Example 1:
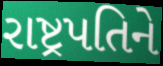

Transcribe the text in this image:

રાષ્ટ્રપતિને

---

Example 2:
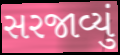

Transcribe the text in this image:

સરજાવ્યું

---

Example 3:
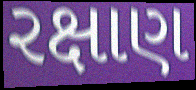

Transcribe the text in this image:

રક્ષાણ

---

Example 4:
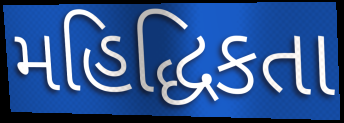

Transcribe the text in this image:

મહિદ્ધિકતા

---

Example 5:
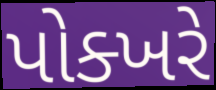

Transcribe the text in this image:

પોક્ખરે